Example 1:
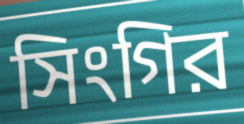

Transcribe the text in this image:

সিংগির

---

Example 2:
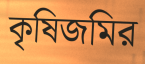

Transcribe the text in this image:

কৃষিজমির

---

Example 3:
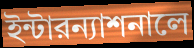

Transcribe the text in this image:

ইন্টারন্যাশনালে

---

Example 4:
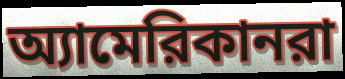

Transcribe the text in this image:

অ্যামেরিকানরা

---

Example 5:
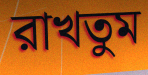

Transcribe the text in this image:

রাখতুম